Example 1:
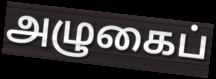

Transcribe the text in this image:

அழுகைப்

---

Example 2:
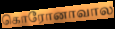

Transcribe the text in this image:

கொரோனாவால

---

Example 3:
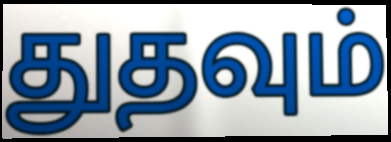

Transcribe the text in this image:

துதவும்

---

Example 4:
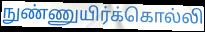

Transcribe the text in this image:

நுண்ணுயிர்க்கொல்லி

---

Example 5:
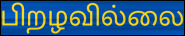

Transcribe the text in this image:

பிறழவில்லை